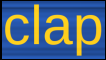
clap